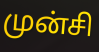
முன்சி